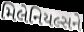
મિલેનિયલ્સને